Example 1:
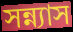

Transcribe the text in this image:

সন্ন্যাস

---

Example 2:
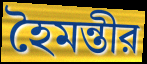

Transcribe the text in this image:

হৈমন্তীর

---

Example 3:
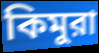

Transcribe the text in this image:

কিমুরা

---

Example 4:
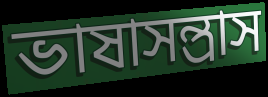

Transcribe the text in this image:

ভাষাসন্ত্রাস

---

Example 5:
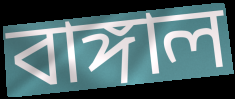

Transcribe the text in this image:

বাঙ্গাল